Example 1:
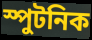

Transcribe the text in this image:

স্পুটনিক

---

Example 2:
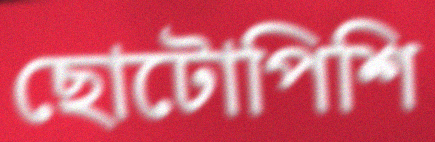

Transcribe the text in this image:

ছোটোপিশি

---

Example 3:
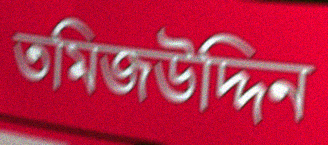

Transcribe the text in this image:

তমিজউদ্দিন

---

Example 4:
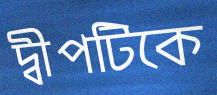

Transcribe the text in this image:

দ্বীপটিকে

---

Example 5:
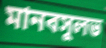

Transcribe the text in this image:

মানবসুলভ